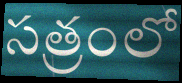
సత్రంలో